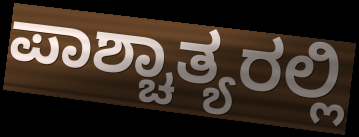
ಪಾಶ್ಚಾತ್ಯರಲ್ಲಿ